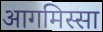
आगमिस्सा